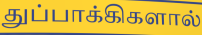
துப்பாக்கிகளால்